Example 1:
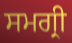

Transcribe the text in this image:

ਸਮਗ੍ਰੀ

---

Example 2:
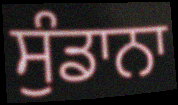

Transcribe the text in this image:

ਸੁੰਡਾਨਾ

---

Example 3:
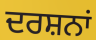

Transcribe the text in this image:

ਦਰਸ਼ਨਾਂ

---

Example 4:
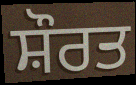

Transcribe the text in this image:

ਸ਼ੌਰਤ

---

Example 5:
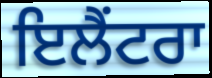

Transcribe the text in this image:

ਇਲੈਂਟਰਾ